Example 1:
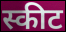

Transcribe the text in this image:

स्कीट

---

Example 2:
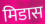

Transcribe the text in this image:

मिडास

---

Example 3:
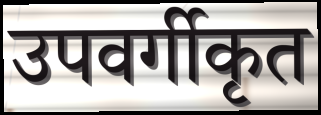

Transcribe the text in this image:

उपवर्गीकृत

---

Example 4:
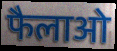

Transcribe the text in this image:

फैलाओ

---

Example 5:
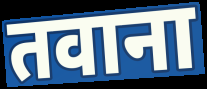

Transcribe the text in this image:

तवाना